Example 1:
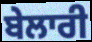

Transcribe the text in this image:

ਬੇਲਾਰੀ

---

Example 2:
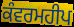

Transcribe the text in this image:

ਕੰਵਰਮਹੀਪ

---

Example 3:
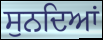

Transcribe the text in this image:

ਸੁਨਦਿਆਂ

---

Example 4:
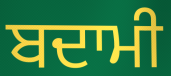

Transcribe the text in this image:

ਬਦਾਮੀ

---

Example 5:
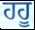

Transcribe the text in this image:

ਹਹੂ